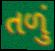
તળું